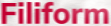
Filiform